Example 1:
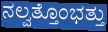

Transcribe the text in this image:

ನಲ್ವತ್ತೊಂಭತ್ತು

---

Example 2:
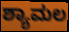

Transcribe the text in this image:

ಶ್ಯಾಮಲ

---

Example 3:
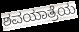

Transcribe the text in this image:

ಶವಯಾತ್ರೆಯ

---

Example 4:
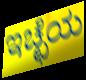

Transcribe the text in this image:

ಇಚ್ಛೆಯ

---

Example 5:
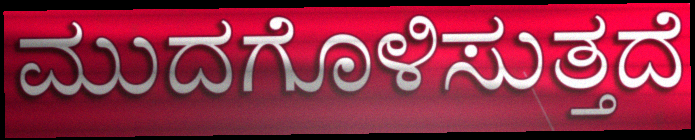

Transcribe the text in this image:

ಮುದಗೊಳಿಸುತ್ತದೆ